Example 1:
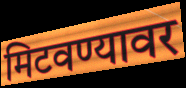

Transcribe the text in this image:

मिटवण्यावर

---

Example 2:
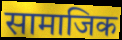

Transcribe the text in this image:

सामाजिक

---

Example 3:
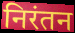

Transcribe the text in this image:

निरंतन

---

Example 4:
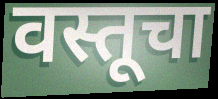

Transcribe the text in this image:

वस्तूचा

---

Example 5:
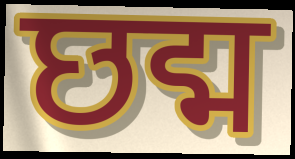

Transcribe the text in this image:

छद्म